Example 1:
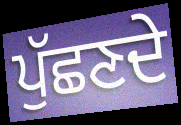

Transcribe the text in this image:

ਪੁੱਛਣਦੇ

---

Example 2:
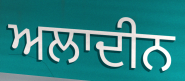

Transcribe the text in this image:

ਅਲਾਦੀਨ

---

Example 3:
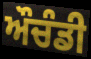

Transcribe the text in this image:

ਔਚੰਡੀ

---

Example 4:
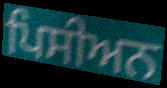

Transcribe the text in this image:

ਪਿਸੀਅਨ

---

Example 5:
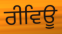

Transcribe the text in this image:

ਰੀਵਿਊ